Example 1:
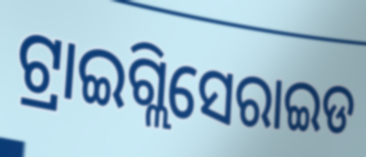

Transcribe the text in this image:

ଟ୍ରାଇଗ୍ଲିସେରାଇଡ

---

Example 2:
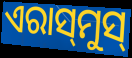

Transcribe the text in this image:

ଏରାସ୍‍ମୁସ୍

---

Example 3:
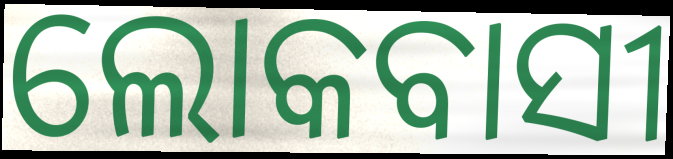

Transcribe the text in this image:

ଲୋକବାସୀ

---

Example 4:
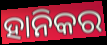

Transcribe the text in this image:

ହାନିକର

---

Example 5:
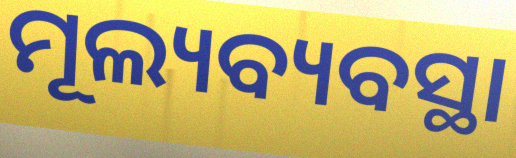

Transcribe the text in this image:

ମୂଲ୍ୟବ୍ୟବସ୍ଥା